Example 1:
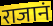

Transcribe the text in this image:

राजानं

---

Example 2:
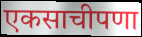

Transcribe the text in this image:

एकसाचीपणा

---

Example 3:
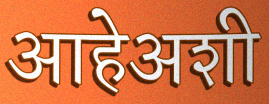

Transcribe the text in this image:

आहेअशी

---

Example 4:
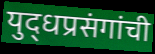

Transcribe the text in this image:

युद्धप्रसंगांची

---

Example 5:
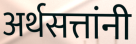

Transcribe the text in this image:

अर्थसत्तांनी